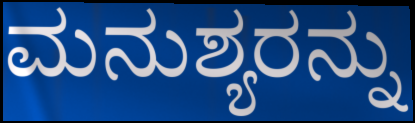
ಮನುಶ್ಯರನ್ನು